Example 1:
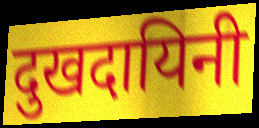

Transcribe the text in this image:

दुखदायिनी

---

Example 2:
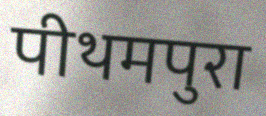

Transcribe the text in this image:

पीथमपुरा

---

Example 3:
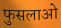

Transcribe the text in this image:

फुसलाओ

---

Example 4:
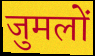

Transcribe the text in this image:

जुमलों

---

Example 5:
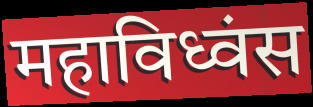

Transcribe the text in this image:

महाविध्वंस